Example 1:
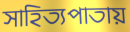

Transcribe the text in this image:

সাহিত্যপাতায়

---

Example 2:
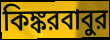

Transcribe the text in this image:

কিঙ্করবাবুর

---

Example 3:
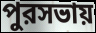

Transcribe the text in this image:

পুরসভায়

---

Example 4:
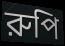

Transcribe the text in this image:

রুপি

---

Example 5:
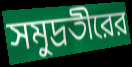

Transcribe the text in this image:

সমুদ্রতীরের